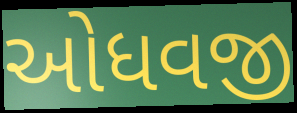
ઓધવજી